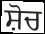
ਸ਼ੋਚ